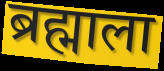
ब्रह्माला